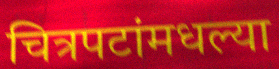
चित्रपटांमधल्या